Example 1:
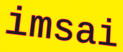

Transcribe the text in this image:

imsai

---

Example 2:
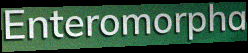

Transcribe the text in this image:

Enteromorpha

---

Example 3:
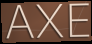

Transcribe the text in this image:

AXE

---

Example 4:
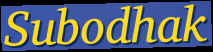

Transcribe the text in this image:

Subodhak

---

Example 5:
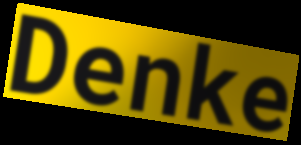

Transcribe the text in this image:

Denke